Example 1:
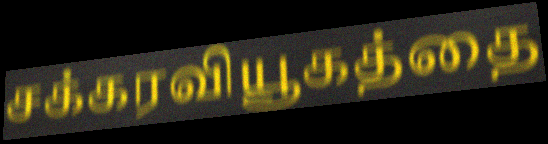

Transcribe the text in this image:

சக்கரவியூகத்தை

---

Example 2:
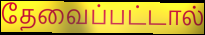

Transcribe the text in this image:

தேவைப்பட்டால்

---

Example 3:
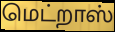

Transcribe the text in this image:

மெட்றாஸ்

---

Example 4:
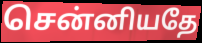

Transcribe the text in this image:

சென்னியதே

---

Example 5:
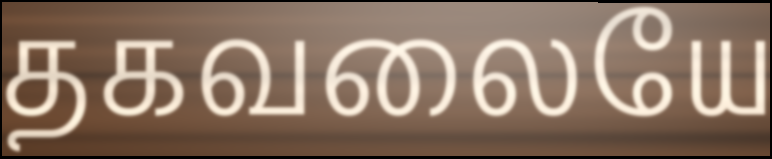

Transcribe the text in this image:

தகவலையே